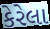
કેરેલા